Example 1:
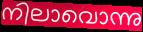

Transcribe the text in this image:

നിലാവൊന്നു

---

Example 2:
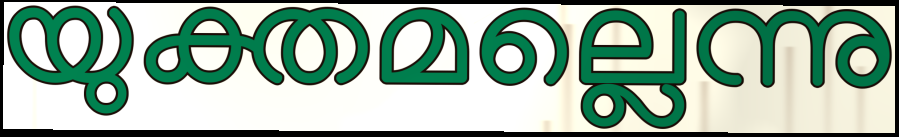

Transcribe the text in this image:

യുക്തമല്ലെന്നു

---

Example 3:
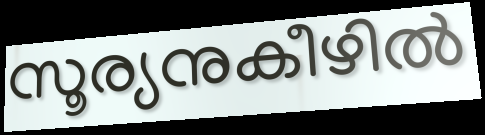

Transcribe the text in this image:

സൂര്യനുകീഴിൽ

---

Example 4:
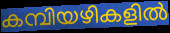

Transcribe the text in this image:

കമ്പിയഴികളിൽ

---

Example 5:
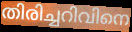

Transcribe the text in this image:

തിരിച്ചറിവിനെ